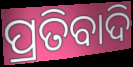
ପ୍ରତିବାଦି